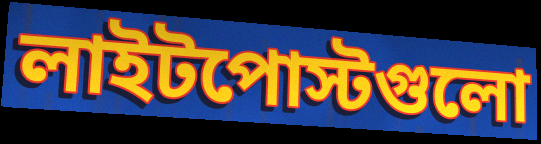
লাইটপোস্টগুলো